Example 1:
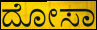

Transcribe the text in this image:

ದೋಸಾ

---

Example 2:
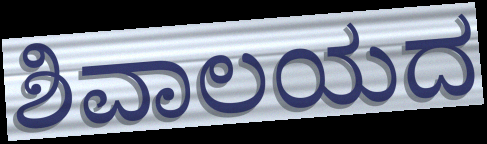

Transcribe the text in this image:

ಶಿವಾಲಯದ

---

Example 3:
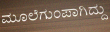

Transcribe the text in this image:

ಮೂಲೆಗುಂಪಾಗಿದ್ದು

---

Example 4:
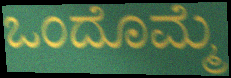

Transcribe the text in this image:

ಒಂದೊಮ್ಮೆ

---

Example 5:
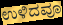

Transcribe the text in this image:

ಉಳಿದವೂ